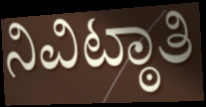
ನಿವಿಟ್ಠಾತಿ